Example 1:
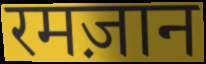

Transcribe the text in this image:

रमज़ान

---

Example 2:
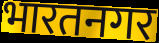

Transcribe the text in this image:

भारतनगर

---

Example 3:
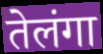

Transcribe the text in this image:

तेलंगा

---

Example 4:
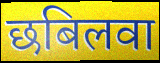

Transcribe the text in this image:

छबिलवा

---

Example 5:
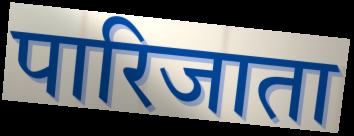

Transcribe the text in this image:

पारिजाता